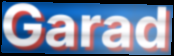
Garad